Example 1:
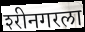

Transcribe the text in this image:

श्रीनगरला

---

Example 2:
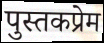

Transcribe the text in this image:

पुस्तकप्रेम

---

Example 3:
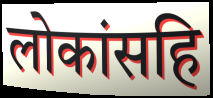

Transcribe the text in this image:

लोकांसहि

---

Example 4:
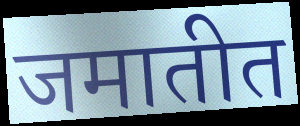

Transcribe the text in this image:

जमातीत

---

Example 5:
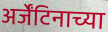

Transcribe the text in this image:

अर्जेंटिनाच्या